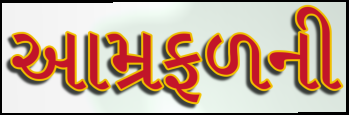
આમ્રફળની